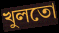
খুলতো